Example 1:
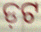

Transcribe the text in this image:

ଡ଼ଟ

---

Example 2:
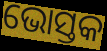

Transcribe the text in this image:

ଭୋସ୍ତକ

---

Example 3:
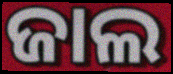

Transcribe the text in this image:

ଜାଲ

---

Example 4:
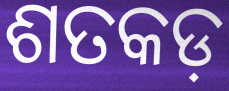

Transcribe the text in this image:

ଶତକଡ଼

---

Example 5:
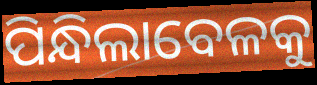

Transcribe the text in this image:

ପିନ୍ଧିଲାବେଳକୁ